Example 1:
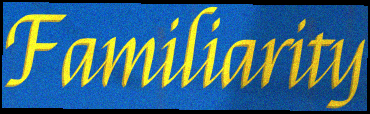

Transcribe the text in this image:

Familiarity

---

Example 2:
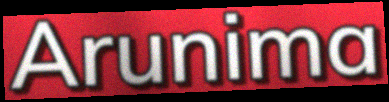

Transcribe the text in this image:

Arunima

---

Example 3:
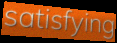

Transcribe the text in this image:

satisfying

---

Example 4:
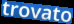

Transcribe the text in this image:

trovato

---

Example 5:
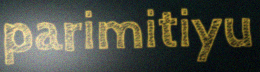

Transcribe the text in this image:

parimitiyu